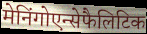
मेनिंगोएन्सेफैलिटिक